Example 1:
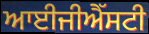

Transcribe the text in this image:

ਆਈਜੀਐੱਸਟੀ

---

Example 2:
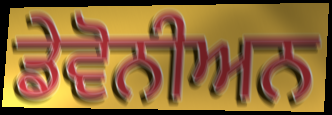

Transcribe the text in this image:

ਡੇਵੋਨੀਅਨ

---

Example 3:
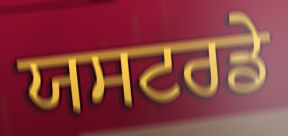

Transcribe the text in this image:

ਯਸਟਰਡੇ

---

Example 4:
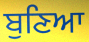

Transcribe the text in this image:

ਬੁਣਿਆ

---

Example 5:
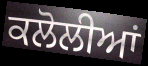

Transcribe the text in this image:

ਕਲੋਲੀਆਂ